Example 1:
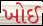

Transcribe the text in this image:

ખોઈ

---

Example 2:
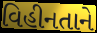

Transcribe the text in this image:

વિહીનતાને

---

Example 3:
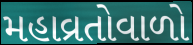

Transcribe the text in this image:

મહાવ્રતોવાળો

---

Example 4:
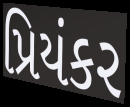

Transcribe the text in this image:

પ્રિયંકર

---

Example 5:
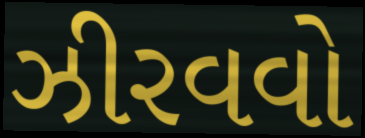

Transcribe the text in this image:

ઝીરવવો